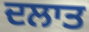
ਦਲਾਤ